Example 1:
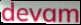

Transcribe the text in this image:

devam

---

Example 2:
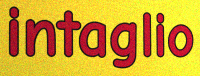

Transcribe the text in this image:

intaglio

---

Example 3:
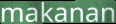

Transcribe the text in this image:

makanan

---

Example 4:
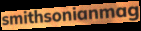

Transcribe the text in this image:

smithsonianmag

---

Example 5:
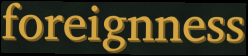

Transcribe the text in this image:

foreignness